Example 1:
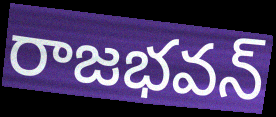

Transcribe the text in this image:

రాజభవన్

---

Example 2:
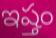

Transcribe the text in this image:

ఇష్తం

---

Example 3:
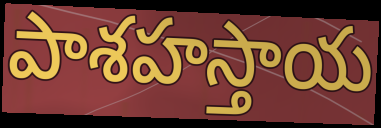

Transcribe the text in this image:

పాశహస్తాయ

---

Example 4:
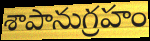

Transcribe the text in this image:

శాపానుగ్రహం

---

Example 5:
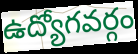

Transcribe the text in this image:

ఉద్యోగవర్గం